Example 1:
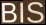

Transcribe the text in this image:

BIS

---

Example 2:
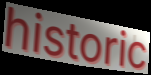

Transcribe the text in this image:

historic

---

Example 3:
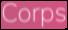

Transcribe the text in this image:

Corps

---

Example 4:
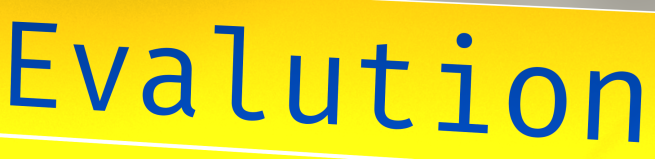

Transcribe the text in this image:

Evalution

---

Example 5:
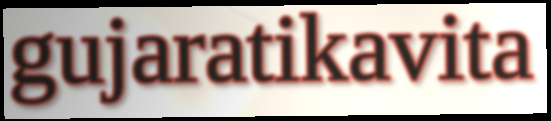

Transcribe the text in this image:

gujaratikavita